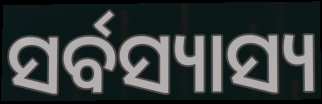
ସର୍ବସ୍ୟାସ୍ୟ